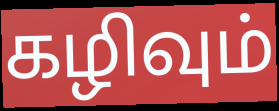
கழிவும்